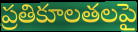
ప్రతికూలతలపై